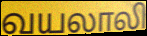
வயலாலி